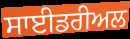
ਸਾਈਡਰੀਅਲ